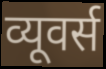
व्यूवर्स